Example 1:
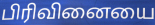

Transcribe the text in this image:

பிரிவினையை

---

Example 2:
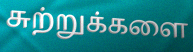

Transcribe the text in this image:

சுற்றுக்களை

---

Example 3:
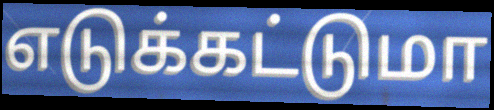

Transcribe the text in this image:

எடுக்கட்டுமா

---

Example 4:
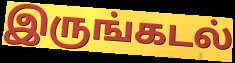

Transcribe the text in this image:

இருங்கடல்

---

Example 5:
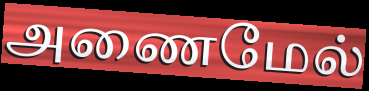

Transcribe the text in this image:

அணைமேல்